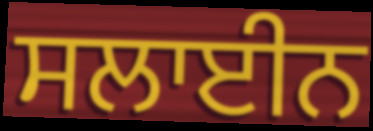
ਸਲਾਈਨ